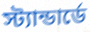
স্ট্যান্ডার্ডে